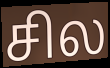
சில